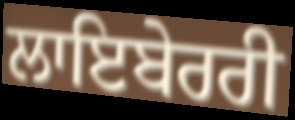
ਲਾਇਬੇਰਰੀ